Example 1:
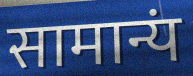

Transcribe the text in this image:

सामान्यं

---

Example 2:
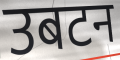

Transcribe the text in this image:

उबटन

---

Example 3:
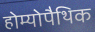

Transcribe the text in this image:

होम्‍योपैथिक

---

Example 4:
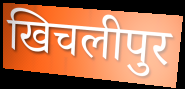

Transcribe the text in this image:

खिचलीपुर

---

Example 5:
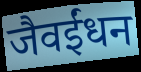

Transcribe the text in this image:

जैवईंधन